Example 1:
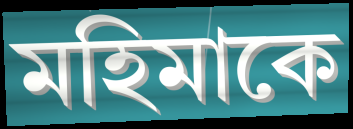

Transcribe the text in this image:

মহিমাকে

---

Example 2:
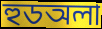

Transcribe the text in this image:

হুডঅলা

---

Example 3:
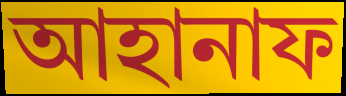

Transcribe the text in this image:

আহানাফ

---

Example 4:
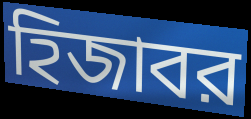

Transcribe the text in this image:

হিজাবর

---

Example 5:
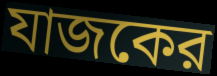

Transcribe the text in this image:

যাজকের